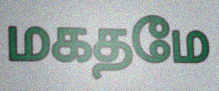
மகதமே